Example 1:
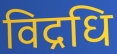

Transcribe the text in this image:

विद्रधि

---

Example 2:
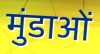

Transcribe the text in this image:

मुंडाओं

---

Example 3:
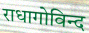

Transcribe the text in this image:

राधागोविन्द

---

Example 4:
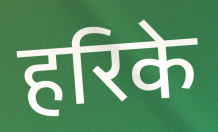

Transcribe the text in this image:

हरिके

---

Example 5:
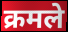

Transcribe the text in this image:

क्रमले